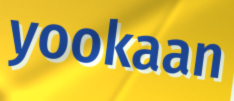
yookaan